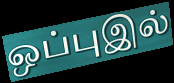
ஒப்புஇல்